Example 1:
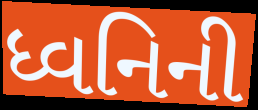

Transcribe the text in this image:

ધ્વનિની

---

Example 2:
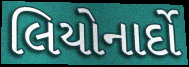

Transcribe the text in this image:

લિયોનાર્દો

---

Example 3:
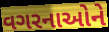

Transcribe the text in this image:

વગરનાઓને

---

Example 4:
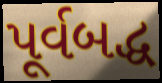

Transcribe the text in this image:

પૂર્વબદ્ધ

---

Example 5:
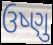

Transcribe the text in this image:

ઉષ્ણુ